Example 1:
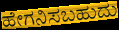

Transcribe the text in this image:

ಹೇಗನಿಸಬಹುದು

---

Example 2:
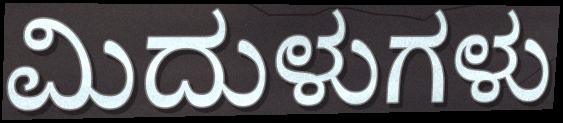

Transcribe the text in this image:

ಮಿದುಳುಗಳು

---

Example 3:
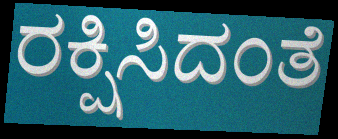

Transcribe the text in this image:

ರಕ್ಷಿಸಿದಂತೆ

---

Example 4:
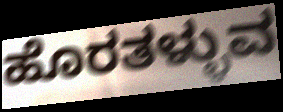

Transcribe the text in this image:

ಹೊರತಳ್ಳುವ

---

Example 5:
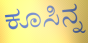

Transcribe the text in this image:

ಕೂಸಿನ್ನ